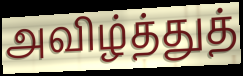
அவிழ்த்துத்